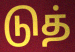
டுத்